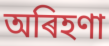
অৰিহণা